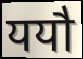
ययौ